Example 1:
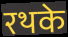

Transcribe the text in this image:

रथके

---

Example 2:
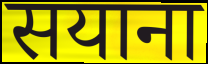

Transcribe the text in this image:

सयाना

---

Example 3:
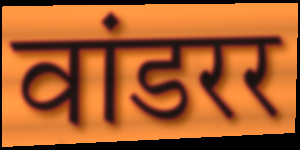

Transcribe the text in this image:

वांडरर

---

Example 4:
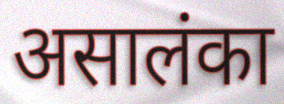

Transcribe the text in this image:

असालंका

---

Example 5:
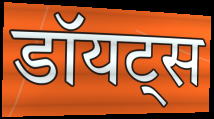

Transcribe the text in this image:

डॉयट्स